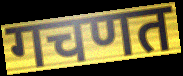
गचणत